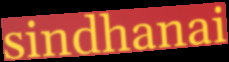
sindhanai